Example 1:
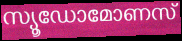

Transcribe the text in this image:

സ്യൂഡോമോണസ്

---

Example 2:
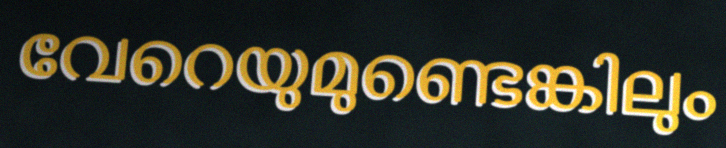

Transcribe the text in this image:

വേറെയുമുണ്ടെങ്കിലും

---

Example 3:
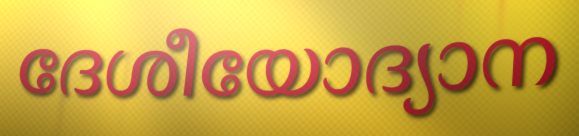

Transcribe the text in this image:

ദേശീയോദ്യാന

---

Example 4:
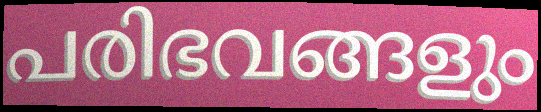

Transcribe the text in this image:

പരിഭവങ്ങളും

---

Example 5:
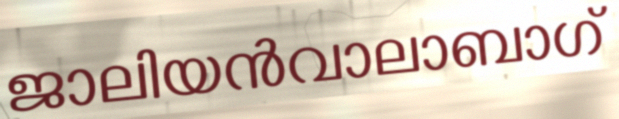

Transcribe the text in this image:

ജാലിയൻവാലാബാഗ്